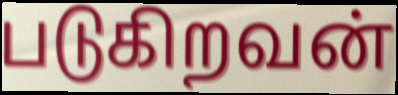
படுகிறவன்